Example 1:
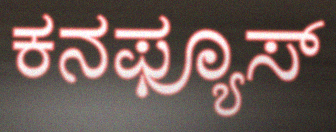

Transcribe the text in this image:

ಕನಫ್ಯೂಸ್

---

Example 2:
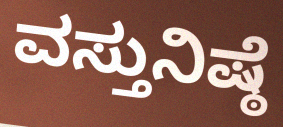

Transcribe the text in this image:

ವಸ್ತುನಿಷ್ಠೆ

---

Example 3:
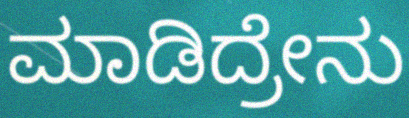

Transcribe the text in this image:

ಮಾಡಿದ್ರೇನು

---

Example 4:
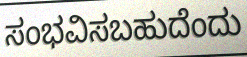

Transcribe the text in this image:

ಸಂಭವಿಸಬಹುದೆಂದು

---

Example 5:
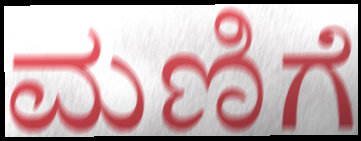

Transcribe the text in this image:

ಮಣಿಗೆ